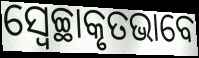
ସ୍ୱେଚ୍ଛାକୃତଭାବେ